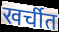
खर्चीत